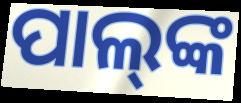
ପାଲ୍‌ଙ୍କ